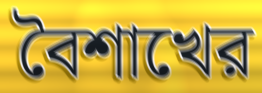
বৈশাখের